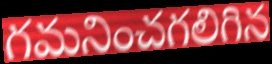
గమనించగలిగిన